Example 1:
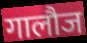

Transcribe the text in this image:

गालौज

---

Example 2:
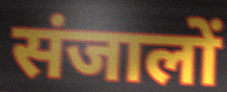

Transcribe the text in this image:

संजालों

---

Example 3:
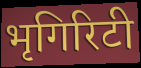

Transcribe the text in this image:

भृगिरिटी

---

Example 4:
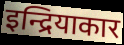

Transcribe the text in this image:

इन्द्रियाकार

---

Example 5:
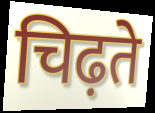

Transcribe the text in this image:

चिढ़ते